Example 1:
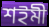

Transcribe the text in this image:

শইমী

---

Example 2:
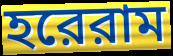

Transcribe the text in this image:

হরেরাম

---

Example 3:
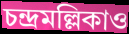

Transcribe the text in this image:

চন্দ্রমল্লিকাও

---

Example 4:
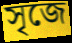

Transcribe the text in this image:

সৃজে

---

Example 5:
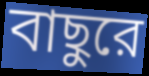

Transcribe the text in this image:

বাছুরে